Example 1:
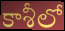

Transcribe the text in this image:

కాశీలో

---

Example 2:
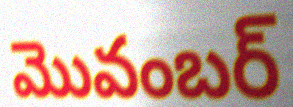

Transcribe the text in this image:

మొవంబర్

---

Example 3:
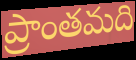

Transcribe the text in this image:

ప్రాంతమది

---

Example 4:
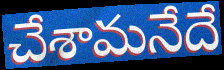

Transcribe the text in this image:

చేశామనేదే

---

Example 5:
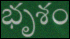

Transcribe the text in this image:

భృశం